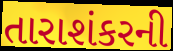
તારાશંકરની